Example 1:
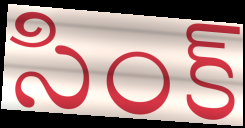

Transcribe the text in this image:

సింక్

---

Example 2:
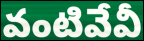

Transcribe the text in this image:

వంటివేవీ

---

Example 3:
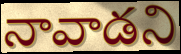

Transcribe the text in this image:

నావాడని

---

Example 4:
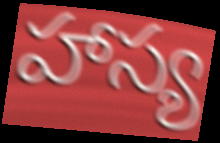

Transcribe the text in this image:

హాస్య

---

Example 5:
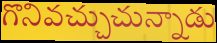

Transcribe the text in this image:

గొనివచ్చుచున్నాడు